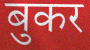
बुकर